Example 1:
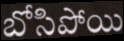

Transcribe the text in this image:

బోసిపోయి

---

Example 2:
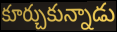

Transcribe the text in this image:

కూర్చుకున్నాడు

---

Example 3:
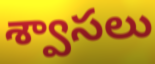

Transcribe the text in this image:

శ్వాసలు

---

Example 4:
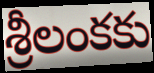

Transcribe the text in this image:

శ్రీలంకకు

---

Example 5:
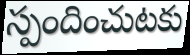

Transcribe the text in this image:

స్పందించుటకు